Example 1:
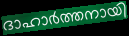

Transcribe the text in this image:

ദാഹാർത്തനായി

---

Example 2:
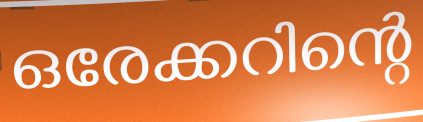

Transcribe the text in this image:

ഒരേക്കറിന്റെ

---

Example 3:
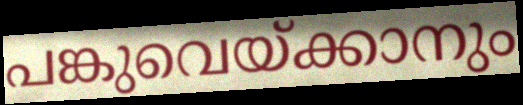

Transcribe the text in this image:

പങ്കുവെയ്ക്കാനും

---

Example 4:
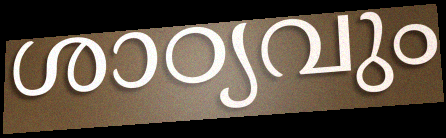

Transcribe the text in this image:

ശാഠ്യവും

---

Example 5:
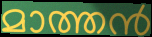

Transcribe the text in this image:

മാത്തൻ